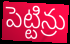
పెట్టిన్రు